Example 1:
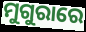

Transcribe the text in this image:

ମୁଗୁରାରେ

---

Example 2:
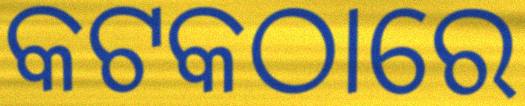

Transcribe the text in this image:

କଟକଠାରେ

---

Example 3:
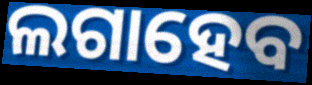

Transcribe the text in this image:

ଲଗାହେବ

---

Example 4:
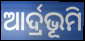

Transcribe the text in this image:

ଆର୍ଦ୍ରଭୂମି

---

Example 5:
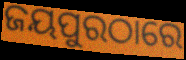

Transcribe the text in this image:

ଜୟପୁରଠାରେ